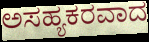
ಅಸಹ್ಯಕರವಾದ